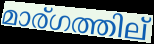
മാര്ഗത്തില്